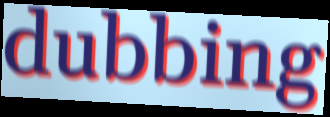
dubbing